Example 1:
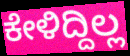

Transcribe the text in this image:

ಕೇಳಿದ್ದಿಲ್ಲ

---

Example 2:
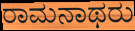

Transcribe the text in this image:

ರಾಮನಾಥರು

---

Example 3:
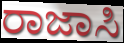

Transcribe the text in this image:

ರಾಜಾಸಿ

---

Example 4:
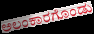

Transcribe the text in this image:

ಅಲಂಕಾರಗೊಂಡು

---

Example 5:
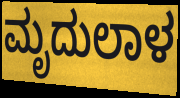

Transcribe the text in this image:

ಮೃದುಲಾಳ